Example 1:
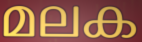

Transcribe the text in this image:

മലക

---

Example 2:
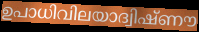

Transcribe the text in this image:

ഉപാധിവിലയാദ്വിഷ്ണൗ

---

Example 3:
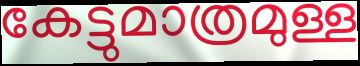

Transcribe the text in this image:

കേട്ടുമാത്രമുള്ള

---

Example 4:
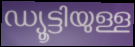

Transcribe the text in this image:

ഡ്യൂട്ടിയുള്ള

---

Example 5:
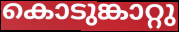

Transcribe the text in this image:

കൊടുങ്കാറ്റു